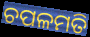
ଚପଳମତି